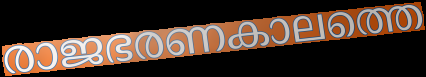
രാജഭരണകാലത്തെ